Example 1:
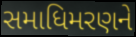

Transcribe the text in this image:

સમાધિમરણને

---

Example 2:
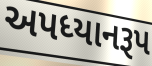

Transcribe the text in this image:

અપધ્યાનરૂપ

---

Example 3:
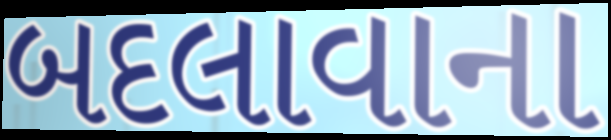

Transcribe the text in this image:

બદલાવાના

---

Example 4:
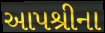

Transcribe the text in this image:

આપશ્રીના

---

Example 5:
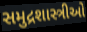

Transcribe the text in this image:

સમુદ્રશાસ્ત્રીઓ